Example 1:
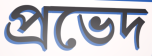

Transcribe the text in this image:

প্ৰভেদ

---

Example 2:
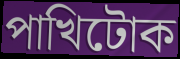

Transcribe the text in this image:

পাখিটোক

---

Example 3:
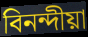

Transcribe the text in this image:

বিনন্দীয়া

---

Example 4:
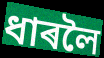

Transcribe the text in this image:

ধাৰলৈ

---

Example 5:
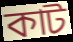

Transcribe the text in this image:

কাট